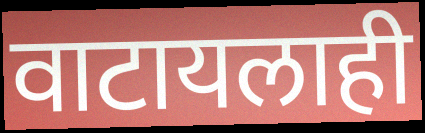
वाटायलाही